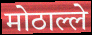
मोठाल्ले